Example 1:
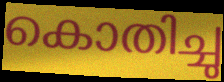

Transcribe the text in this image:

കൊതിച്ചു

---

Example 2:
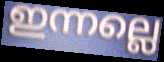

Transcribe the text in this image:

ഇന്നല്ലെ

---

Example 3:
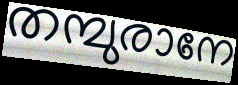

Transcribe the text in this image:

തമ്പുരാനേ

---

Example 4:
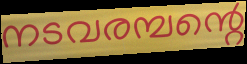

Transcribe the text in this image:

നടവരമ്പന്റെ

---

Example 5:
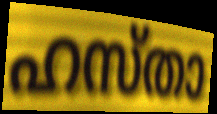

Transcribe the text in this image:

ഹസ്താ